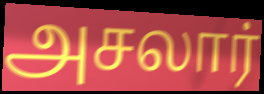
அசலார்